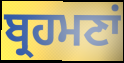
ਬ੍ਰਹਮਣਾਂ